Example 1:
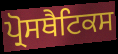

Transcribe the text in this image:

ਪ੍ਰੋਸਥੈਟਿਕਸ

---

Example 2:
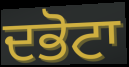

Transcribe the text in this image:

ਦਭੋਟਾ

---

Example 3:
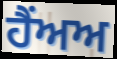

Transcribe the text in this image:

ਹੈਂਅਅ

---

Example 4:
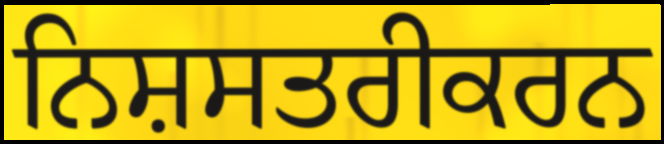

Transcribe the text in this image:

ਨਿਸ਼ਸਤਰੀਕਰਨ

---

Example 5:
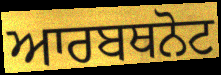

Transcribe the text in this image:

ਆਰਬਥਨੋਟ